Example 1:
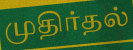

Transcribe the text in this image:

முதிர்தல்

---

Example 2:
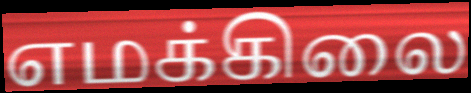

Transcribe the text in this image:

எமக்கிலை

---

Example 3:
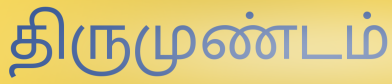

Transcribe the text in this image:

திருமுண்டம்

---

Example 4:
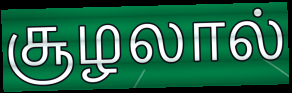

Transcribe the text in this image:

சூழலால்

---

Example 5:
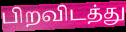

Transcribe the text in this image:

பிறவிடத்து